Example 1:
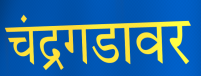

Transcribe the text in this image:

चंद्रगडावर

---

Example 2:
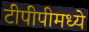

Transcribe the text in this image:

टीपीपीमध्ये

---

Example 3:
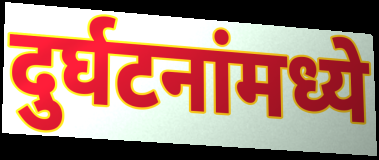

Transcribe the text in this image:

दुर्घटनांमध्ये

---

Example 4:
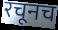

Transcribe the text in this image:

रचूनच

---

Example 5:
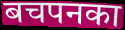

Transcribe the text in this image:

बचपनका